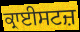
ਕ੍ਰਾਈਸਟਜ਼